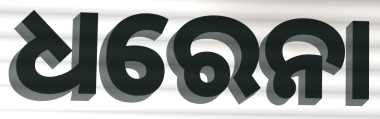
ଧରେନା